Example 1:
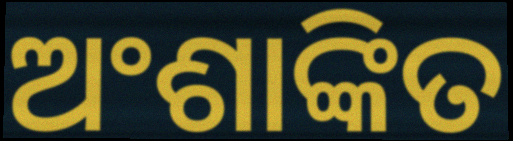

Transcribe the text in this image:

ଅଂଶାଙ୍କିତ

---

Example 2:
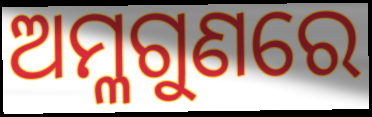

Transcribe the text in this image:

ଅମ୍ଳଗୁଣରେ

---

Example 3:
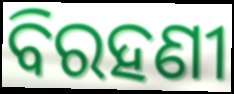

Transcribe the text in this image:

ବିରହଣୀ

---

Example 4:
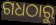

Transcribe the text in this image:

ଗଧଠାରୁ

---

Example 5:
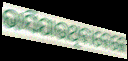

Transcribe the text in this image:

ଭାସିଯାଉଥିଵାଵେଳେ